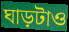
ঘাড়টাও